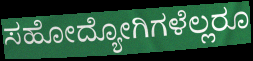
ಸಹೋದ್ಯೋಗಿಗಳೆಲ್ಲರೂ